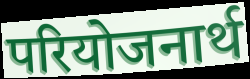
परियोजनार्थ